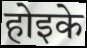
होइके